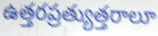
ఉత్తరప్రత్యుత్తరాలూ